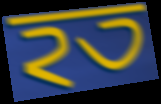
হত